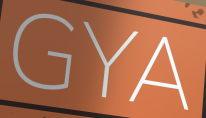
GYA